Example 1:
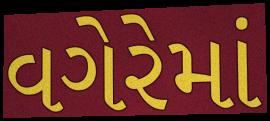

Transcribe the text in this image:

વગેરેમાં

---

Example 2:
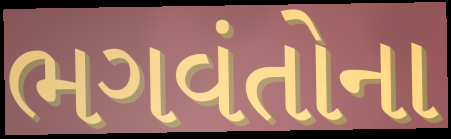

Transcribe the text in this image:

ભગવંતોના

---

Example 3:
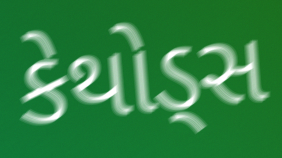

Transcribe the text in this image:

કેથોડ્સ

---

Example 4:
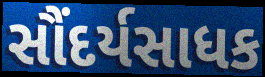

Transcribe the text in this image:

સૌંદર્યસાધક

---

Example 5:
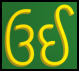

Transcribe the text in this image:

ઉઈ